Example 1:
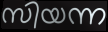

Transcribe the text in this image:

സിയന്ന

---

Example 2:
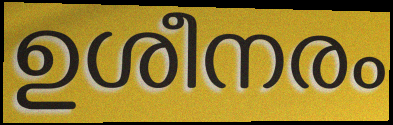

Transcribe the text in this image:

ഉശീനരം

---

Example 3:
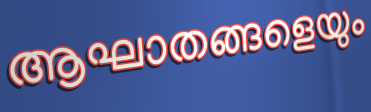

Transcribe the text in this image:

ആഘാതങ്ങളെയും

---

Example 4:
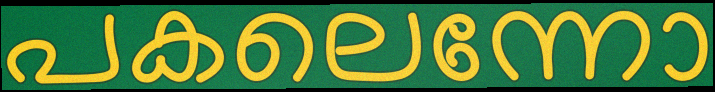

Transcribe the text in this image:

പകലെന്നോ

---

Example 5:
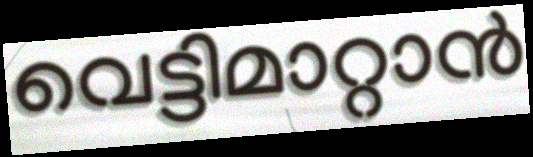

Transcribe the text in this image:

വെട്ടിമാറ്റാൻ